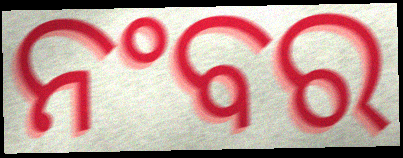
ନଂବର